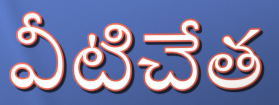
వీటిచేత